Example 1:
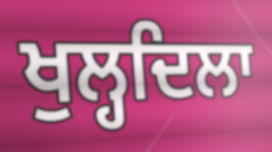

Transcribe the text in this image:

ਖੁਲ੍ਹਦਿਲਾ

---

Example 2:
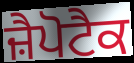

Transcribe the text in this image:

ਜ਼ੈਪੋਟੈਕ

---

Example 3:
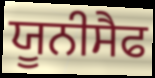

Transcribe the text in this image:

ਯੂਨੀਸੈਫ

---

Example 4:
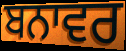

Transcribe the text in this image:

ਬਨਾਵਰ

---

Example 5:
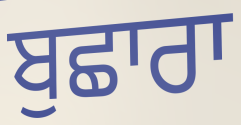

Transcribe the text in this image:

ਬੁਛਾਰਾ